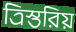
ত্রিস্তরিয়